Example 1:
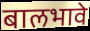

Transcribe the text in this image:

बालभावे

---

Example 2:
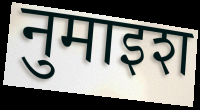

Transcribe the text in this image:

नुमाइश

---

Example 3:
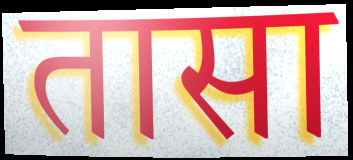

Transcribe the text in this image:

तासा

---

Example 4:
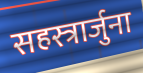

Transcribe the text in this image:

सहस्त्रार्जुना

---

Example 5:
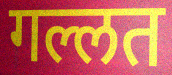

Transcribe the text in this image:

गल्लत